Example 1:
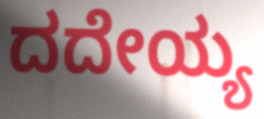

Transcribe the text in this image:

ದದೇಯ್ಯ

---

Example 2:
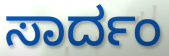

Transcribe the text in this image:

ಸಾರ್ದಂ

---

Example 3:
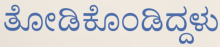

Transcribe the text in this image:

ತೋಡಿಕೊಂಡಿದ್ದಳು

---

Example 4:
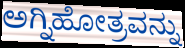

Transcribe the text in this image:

ಅಗ್ನಿಹೋತ್ರವನ್ನು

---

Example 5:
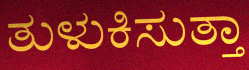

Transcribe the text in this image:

ತುಳುಕಿಸುತ್ತಾ